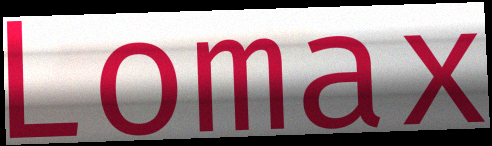
Lomax